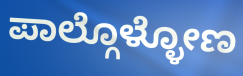
ಪಾಲ್ಗೊಳ್ಳೋಣ